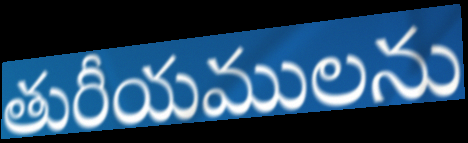
తురీయములను